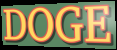
DOGE